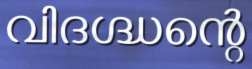
വിദഗ്ദ്ധന്റെ